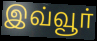
இவ்வூர்